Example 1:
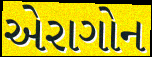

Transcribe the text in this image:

એરાગોન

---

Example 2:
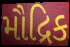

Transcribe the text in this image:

મૌદ્રિક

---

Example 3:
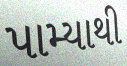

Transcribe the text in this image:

પામ્યાથી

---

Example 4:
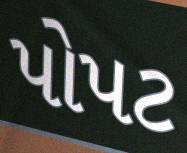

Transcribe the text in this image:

પોપટ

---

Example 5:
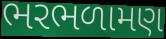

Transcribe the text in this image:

ભરભળામણ